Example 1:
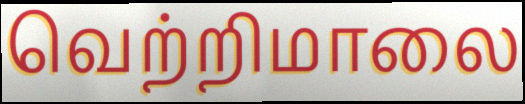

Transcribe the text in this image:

வெற்றிமாலை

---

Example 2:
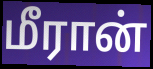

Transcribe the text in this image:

மீரான்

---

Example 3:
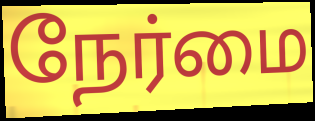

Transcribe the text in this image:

நேர்மை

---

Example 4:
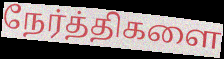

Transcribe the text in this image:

நேர்த்திகளை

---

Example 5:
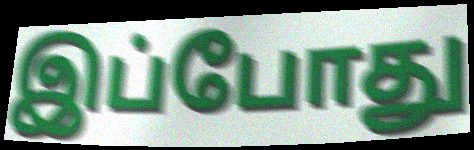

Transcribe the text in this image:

இப்போது